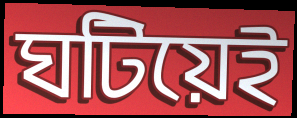
ঘটিয়েই